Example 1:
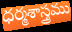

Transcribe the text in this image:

ధర్మశాస్త్రము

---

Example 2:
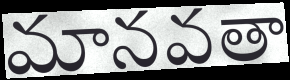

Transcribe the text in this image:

మానవతా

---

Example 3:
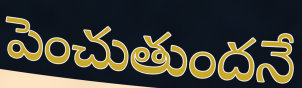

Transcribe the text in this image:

పెంచుతుందనే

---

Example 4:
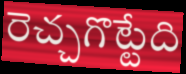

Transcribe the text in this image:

రెచ్చగొట్టేది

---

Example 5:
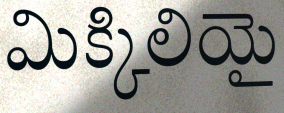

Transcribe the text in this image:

మిక్కిలియై